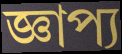
জ্ঞাপ্য